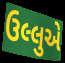
ઉલ્લુએ